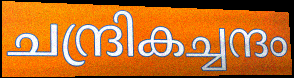
ചന്ദ്രികച്ചന്ദം